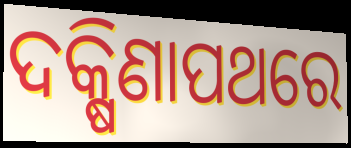
ଦକ୍ଷିଣାପଥରେ